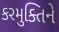
કરમુક્તિને